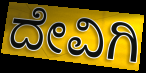
ದೇವಿಗಿ